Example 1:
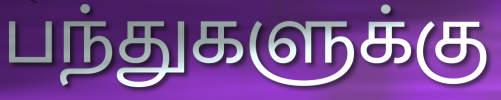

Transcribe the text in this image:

பந்துகளுக்கு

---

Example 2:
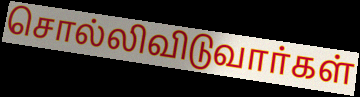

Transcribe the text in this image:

சொல்லிவிடுவார்கள்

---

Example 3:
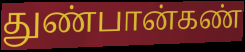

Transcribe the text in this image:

துண்பான்கண்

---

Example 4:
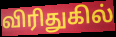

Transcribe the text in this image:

விரிதுகில்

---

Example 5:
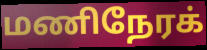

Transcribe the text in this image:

மணிநேரக்